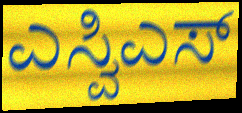
ಎಸ್ವಿಎಸ್